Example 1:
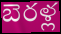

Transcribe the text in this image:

బెరళ్ల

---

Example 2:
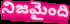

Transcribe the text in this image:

నిజమైంది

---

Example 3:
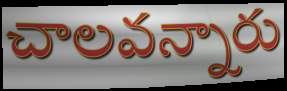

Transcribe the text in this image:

చాలవన్నారు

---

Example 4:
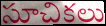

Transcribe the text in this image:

సూచికలు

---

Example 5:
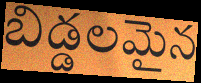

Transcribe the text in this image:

బిడ్డలమైన